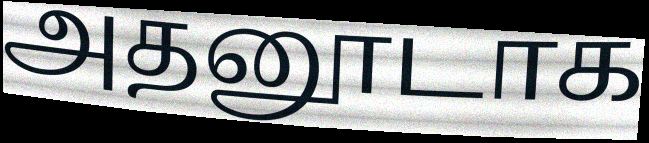
அதனூடாக